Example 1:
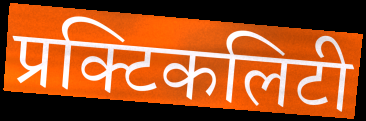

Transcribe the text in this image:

प्रक्टिकलिटी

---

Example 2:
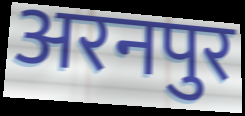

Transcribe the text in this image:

अरनपुर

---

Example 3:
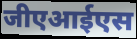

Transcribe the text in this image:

जीएआईएस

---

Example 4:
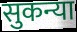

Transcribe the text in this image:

सुकन्या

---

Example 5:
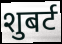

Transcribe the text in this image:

शुबर्ट